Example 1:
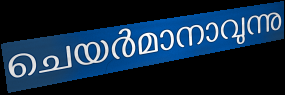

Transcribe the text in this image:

ചെയർമാനാവുന്നു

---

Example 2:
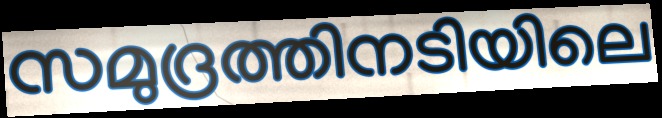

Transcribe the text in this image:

സമുദ്രത്തിനടിയിലെ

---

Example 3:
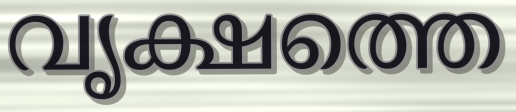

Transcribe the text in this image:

വൃക്ഷത്തെ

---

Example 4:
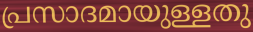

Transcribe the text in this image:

പ്രസാദമായുള്ളതു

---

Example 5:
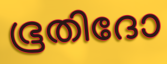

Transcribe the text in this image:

ഭൂതിദോ